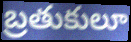
బ్రతుకులూ